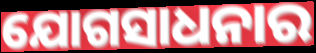
ଯୋଗସାଧନାର